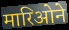
मारिओने